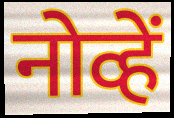
नोव्हें